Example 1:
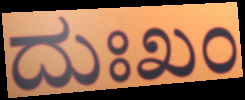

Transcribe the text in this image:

ದುಃಖಂ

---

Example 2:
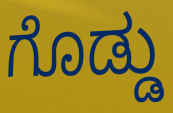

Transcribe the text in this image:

ಗೊಡ್ಡು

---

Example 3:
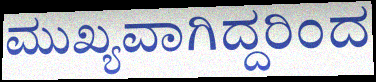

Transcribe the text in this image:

ಮುಖ್ಯವಾಗಿದ್ದರಿಂದ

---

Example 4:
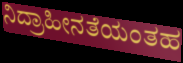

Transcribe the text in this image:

ನಿದ್ರಾಹೀನತೆಯಂತಹ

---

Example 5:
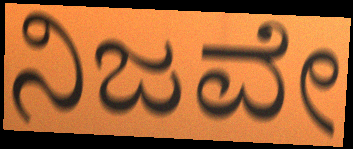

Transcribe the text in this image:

ನಿಜವೇ